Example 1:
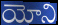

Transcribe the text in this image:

యోని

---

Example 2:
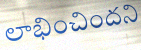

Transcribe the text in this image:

లాభించిందని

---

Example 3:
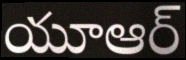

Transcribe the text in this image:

యూఆర్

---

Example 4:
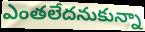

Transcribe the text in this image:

ఎంతలేదనుకున్నా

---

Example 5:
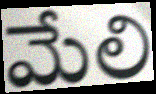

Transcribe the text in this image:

మేలి